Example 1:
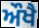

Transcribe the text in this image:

ਔਖੈ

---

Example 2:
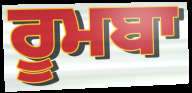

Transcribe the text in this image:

ਰੂਮਬਾ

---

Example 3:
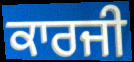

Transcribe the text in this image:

ਕਾਰਜੀ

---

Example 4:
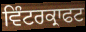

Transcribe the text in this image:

ਵਿੰਟਰਕ੍ਰਾਫਟ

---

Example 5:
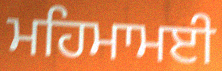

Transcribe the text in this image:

ਮਹਿਮਾਮਈ